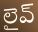
లైవ్